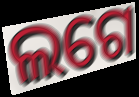
ଲଗେ